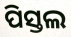
ପିସ୍ତଲ